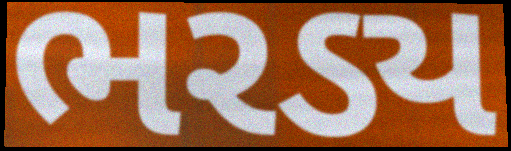
ભરડ્ય